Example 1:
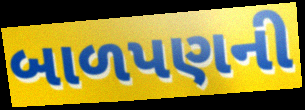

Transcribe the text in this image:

બાળપણની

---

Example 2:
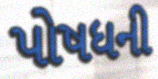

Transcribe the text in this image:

પોષધની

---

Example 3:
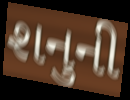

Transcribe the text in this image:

શનુની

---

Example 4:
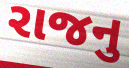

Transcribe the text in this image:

રાજનુ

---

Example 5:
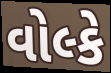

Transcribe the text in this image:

વોલ્કે